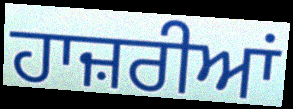
ਹਾਜ਼ਰੀਆਂ